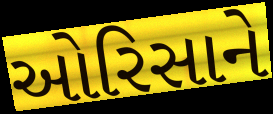
ઓરિસાને